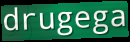
drugega